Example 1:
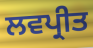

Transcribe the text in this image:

ਲਵਪ੍ਰੀਤ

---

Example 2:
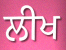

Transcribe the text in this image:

ਲੀਖ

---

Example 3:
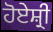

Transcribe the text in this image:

ਹੋਏਸ਼੍ਰੀ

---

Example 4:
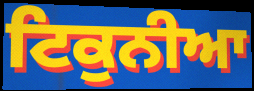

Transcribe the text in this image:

ਟਿਕੁਨੀਆ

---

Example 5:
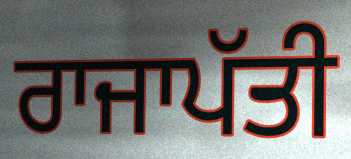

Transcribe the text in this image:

ਰਾਜਾਪੱਤੀ